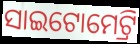
ସାଇଟୋମେଟ୍ରି